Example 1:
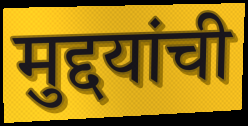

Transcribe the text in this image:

मुद्दयांची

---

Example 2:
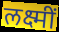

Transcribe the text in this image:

लक्ष्मीं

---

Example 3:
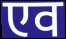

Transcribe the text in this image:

एव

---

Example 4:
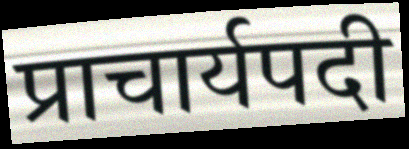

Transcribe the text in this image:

प्राचार्यपदी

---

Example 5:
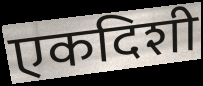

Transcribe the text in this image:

एकदिशी